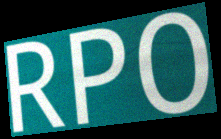
RPO